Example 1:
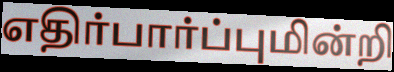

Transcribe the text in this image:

எதிர்பார்ப்புமின்றி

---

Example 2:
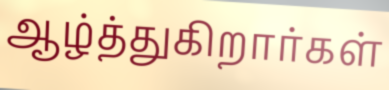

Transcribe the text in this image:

ஆழ்த்துகிறார்கள்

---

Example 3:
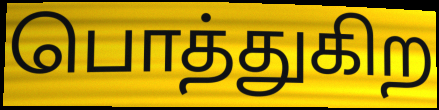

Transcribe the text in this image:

பொத்துகிற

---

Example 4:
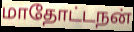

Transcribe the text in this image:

மாதோட்டநன்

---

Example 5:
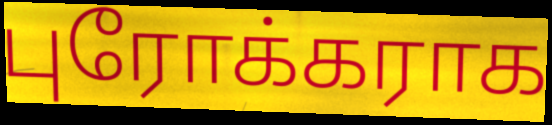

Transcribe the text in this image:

புரோக்கராக